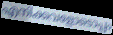
എനിക്കവളോടൊപ്പം